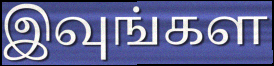
இவுங்கள